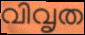
വിവൃത